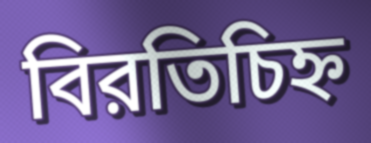
বিরতিচিহ্ন